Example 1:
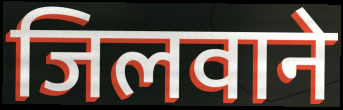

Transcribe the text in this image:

जिलवाने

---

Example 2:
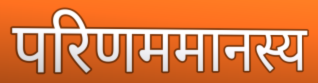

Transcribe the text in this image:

परिणममानस्य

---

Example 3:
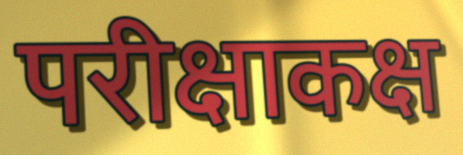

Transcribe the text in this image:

परीक्षाकक्ष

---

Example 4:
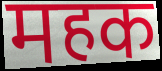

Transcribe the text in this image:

महक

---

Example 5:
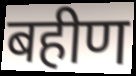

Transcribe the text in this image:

बहीण